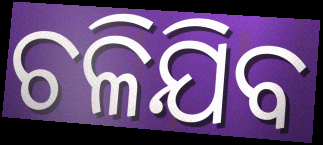
ଚଳିଯିବ